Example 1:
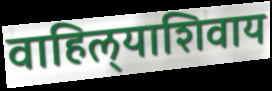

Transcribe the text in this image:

वाहिल्याशिवाय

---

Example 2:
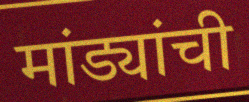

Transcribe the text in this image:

मांड्यांची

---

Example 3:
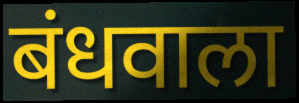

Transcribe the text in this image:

बंधवाला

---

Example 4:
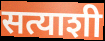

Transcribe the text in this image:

सत्याशी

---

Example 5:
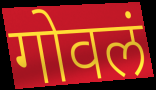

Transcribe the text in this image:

गोवलं